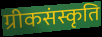
ग्रीकसंस्कृति